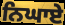
ਨਿਘਾਏ